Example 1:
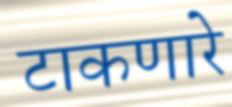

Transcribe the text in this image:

टाकणारे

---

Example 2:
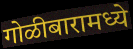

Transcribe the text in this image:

गोळीबारामध्ये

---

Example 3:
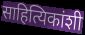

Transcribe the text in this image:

साहित्यिकांशी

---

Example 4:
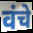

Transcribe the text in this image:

वंचे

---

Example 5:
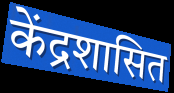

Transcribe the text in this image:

केंद्रशासित